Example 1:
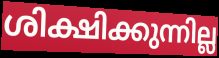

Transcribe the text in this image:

ശിക്ഷിക്കുന്നില്ല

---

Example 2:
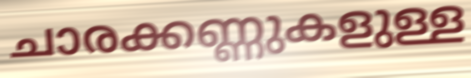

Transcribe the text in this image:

ചാരക്കണ്ണുകളുള്ള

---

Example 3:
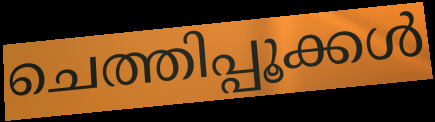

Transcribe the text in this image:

ചെത്തിപ്പൂക്കൾ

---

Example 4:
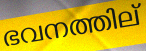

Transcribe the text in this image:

ഭവനത്തില്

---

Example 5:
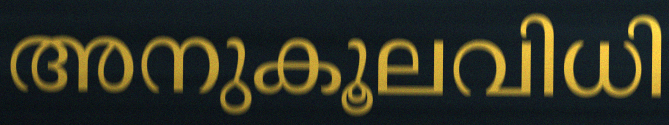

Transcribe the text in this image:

അനുകൂലവിധി